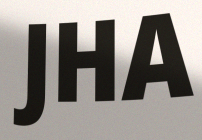
JHA